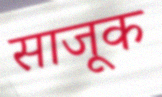
साजूक